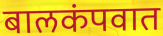
बालकंपवात